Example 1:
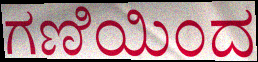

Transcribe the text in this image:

ಗಣಿಯಿಂದ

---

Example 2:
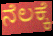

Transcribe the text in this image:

ನೆಲಕ್ಕೆ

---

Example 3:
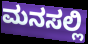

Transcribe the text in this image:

ಮನಸಲ್ಲಿ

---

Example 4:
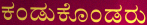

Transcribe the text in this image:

ಕಂಡುಕೊಂಡರು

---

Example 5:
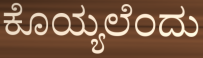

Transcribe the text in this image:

ಕೊಯ್ಯಲೆಂದು